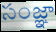
సంజ్ఞా